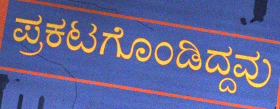
ಪ್ರಕಟಗೊಂಡಿದ್ದವು